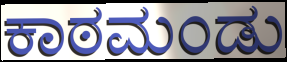
ಕಾಠಮಂಡು